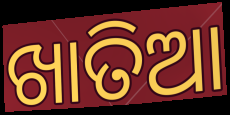
ଖାତିଆ